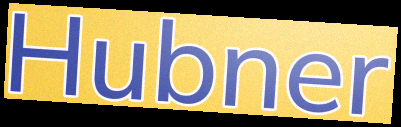
Hubner